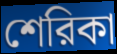
শেরিকা